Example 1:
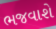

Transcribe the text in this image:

ભજવાશે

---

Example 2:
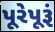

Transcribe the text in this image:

પૂરેપૂરૂં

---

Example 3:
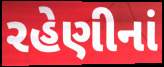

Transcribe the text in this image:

રહેણીનાં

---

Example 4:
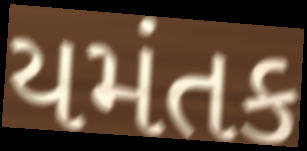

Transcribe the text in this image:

યમંતક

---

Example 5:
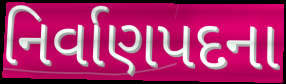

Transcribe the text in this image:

નિર્વાણપદના